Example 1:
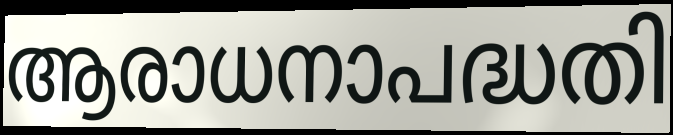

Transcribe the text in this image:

ആരാധനാപദ്ധതി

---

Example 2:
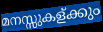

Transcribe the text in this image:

മനസ്സുകള്ക്കും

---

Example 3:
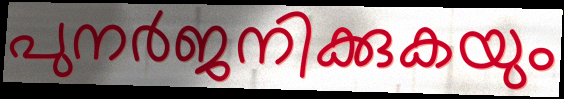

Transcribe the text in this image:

പുനർജനിക്കുകയും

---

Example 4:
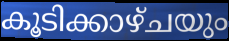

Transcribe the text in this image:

കൂടിക്കാഴ്ചയും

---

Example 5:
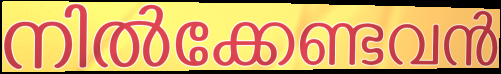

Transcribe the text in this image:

നിൽക്കേണ്ടവൻ